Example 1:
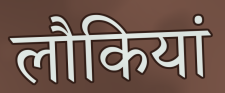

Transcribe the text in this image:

लौकियां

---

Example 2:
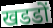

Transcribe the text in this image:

खडडों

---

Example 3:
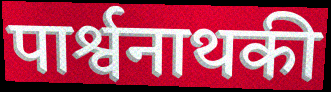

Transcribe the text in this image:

पार्श्वनाथकी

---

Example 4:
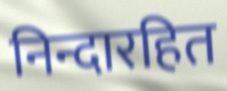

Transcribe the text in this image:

निन्दारहित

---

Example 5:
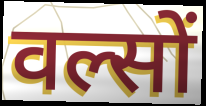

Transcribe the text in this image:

वल्सों